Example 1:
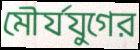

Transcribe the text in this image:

মৌর্যযুগের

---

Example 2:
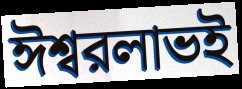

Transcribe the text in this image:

ঈশ্বরলাভই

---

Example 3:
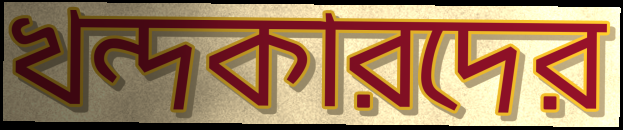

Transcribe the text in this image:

খন্দকারদের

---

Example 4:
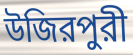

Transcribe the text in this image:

উজিরপুরী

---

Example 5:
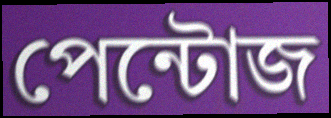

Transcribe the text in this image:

পেন্টোজ